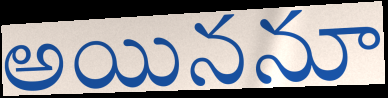
అయిననూ